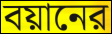
বয়ানের